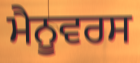
ਮੈਨੂਵਰਸ